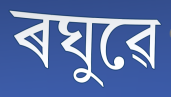
ৰঘুৱে